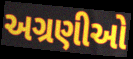
અગ્રણીઓ